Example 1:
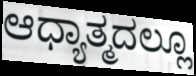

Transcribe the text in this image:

ಆಧ್ಯಾತ್ಮದಲ್ಲೂ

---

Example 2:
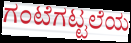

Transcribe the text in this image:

ಗಂಟೆಗಟ್ಟಲೆಯ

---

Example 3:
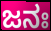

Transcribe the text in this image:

ಜನಃ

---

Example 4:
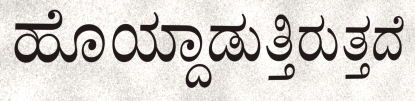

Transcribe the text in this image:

ಹೊಯ್ದಾಡುತ್ತಿರುತ್ತದೆ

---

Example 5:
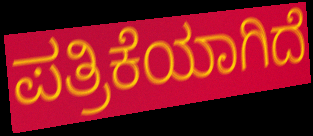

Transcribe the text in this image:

ಪತ್ರಿಕೆಯಾಗಿದೆ